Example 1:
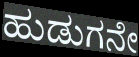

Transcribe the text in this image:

ಹುಡುಗನೇ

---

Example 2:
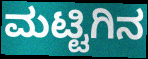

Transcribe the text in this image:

ಮಟ್ಟಿಗಿನ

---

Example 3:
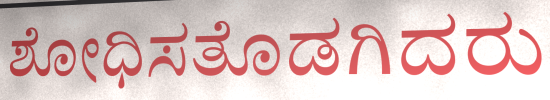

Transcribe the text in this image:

ಶೋಧಿಸತೊಡಗಿದರು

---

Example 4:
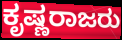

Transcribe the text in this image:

ಕೃಷ್ಣರಾಜರು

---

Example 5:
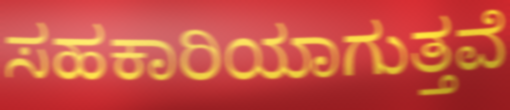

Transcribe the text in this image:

ಸಹಕಾರಿಯಾಗುತ್ತವೆ